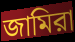
জামিরা